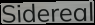
Sidereal